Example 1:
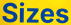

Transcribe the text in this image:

Sizes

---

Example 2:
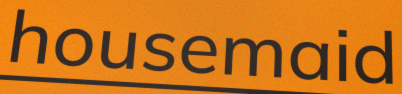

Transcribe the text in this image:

housemaid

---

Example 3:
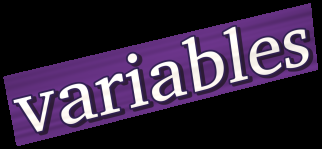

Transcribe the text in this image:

variables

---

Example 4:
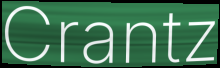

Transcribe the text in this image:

Crantz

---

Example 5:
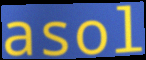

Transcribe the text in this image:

asol